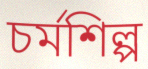
চর্মশিল্প